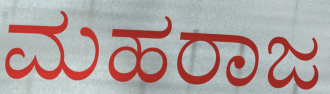
ಮಹರಾಜ